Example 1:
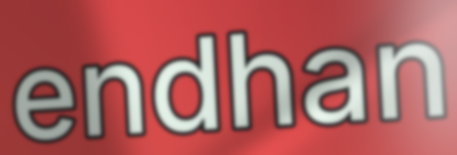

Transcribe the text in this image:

endhan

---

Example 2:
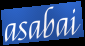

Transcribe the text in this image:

asabai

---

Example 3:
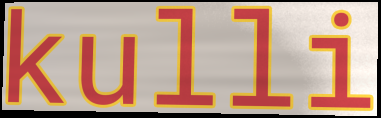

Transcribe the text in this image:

kulli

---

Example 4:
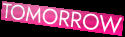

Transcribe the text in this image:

TOMORROW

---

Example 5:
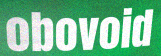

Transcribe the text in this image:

obovoid